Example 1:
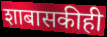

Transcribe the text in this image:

शाबासकीही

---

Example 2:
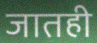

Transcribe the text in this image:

जातही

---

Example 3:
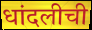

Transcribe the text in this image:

धांदलीची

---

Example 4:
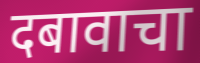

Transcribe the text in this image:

दबावाचा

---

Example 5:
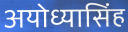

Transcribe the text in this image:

अयोध्यासिंह